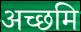
अच्छमि